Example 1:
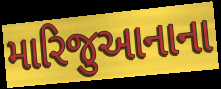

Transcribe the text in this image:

મારિજુઆનાના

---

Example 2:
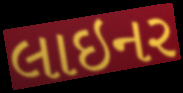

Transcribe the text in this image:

લાઇનર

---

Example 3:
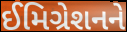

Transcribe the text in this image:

ઈમિગ્રેશનને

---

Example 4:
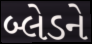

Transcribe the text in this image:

બ્લેડને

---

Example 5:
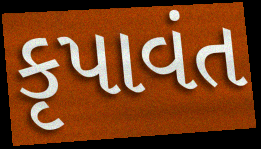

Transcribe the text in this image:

કૃપાવંત